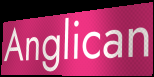
Anglican